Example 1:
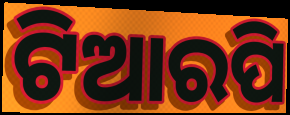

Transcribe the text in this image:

ଟିଆରପି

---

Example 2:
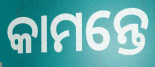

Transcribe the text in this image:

କାମନ୍ତେ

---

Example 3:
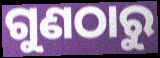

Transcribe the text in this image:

ଗୁଣଠାରୁ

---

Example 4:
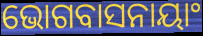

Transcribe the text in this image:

ଭୋଗବାସନାୟାଂ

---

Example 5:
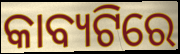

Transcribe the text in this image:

କାବ୍ୟଟିରେ